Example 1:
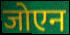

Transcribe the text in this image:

जोएन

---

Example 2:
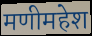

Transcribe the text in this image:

मणीमहेश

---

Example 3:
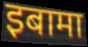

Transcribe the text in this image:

इबामा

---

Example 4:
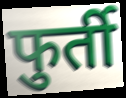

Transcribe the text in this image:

फुर्ती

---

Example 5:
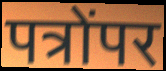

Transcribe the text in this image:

पत्रोंपर